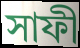
সাফী